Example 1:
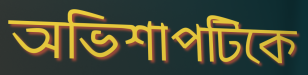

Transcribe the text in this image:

অভিশাপটিকে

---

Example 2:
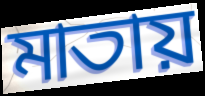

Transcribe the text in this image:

মাতায়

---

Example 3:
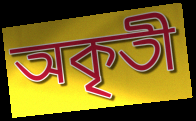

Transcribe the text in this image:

অকৃতী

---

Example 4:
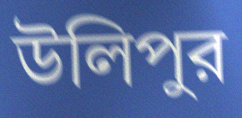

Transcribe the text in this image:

উলিপুর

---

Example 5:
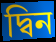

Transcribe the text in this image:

দ্বিন